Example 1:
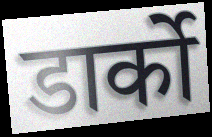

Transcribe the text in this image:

डार्को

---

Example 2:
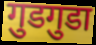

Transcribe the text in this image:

गुडगुडा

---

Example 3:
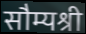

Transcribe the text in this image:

सौम्यश्री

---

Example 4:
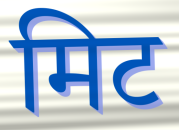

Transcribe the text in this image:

मिट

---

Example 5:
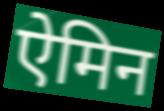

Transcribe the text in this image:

ऐमिन